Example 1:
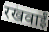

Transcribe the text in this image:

रखवाईं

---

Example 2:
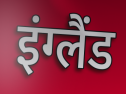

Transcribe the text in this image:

इंग्लैंड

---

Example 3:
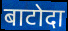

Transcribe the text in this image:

बाटोदा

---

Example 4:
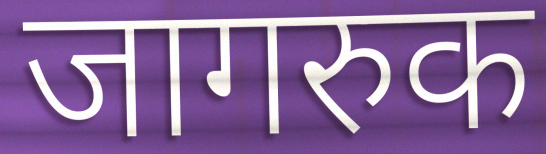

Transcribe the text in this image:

जागरुक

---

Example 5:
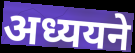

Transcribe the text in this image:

अध्ययने